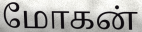
மோகன்